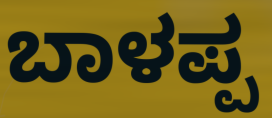
ಬಾಳಪ್ಪ